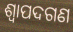
ଶ୍ୱାପଦଗଣ